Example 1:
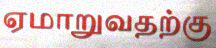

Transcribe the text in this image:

ஏமாறுவதற்கு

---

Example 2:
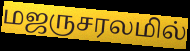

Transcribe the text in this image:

மஜருசரலமில்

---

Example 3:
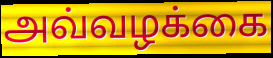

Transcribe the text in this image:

அவ்வழக்கை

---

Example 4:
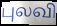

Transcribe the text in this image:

புலவி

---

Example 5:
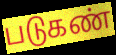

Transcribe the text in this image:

படுகண்